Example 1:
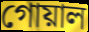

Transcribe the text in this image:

গোয়াল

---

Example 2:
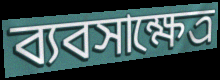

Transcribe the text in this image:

ব্যবসাক্ষেত্র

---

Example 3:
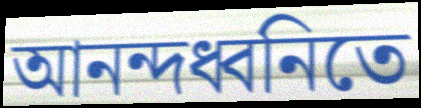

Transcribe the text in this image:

আনন্দধ্বনিতে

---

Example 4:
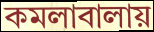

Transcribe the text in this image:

কমলাবালায়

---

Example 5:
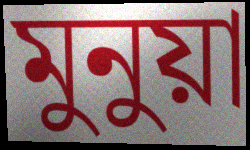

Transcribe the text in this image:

মুনুয়া